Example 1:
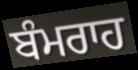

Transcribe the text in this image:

ਬੰਮਰਾਹ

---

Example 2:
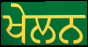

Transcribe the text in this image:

ਖੇਲਨ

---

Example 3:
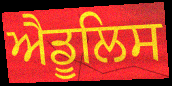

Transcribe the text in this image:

ਐਡੂਲਿਸ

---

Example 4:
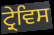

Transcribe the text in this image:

ਟ੍ਰੇਵਿਸ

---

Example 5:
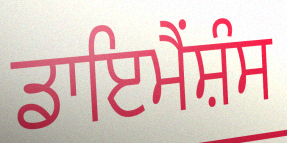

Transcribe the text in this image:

ਡਾਇਮੈਂਸ਼ੰਸ